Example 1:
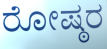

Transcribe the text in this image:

ರೋಷ್ಠರ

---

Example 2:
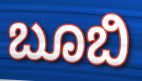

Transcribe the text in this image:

ಬೂಬಿ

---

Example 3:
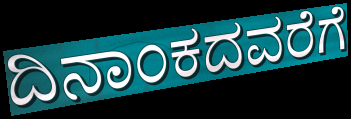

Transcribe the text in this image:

ದಿನಾಂಕದವರೆಗೆ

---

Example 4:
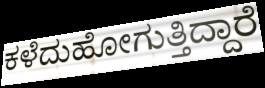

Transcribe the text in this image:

ಕಳೆದುಹೋಗುತ್ತಿದ್ದಾರೆ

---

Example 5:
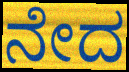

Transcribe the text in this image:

ನೇದ